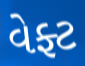
વેફ્ટ